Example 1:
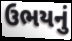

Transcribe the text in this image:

ઉભયનું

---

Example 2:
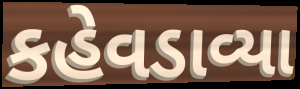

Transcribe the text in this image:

કહેવડાવ્યા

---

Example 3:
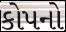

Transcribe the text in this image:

કોપનો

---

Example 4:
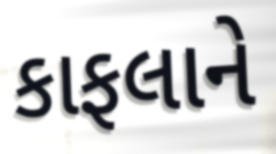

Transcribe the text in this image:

કાફલાને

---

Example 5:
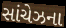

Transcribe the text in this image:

સાંચેઝના